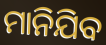
ମାନିଯିବ